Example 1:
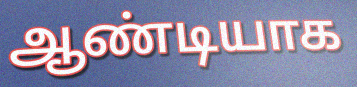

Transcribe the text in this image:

ஆண்டியாக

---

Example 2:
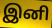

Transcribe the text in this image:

இனி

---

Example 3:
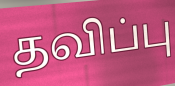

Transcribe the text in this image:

தவிப்பு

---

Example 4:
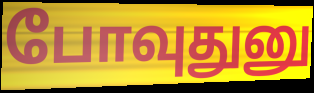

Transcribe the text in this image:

போவுதுனு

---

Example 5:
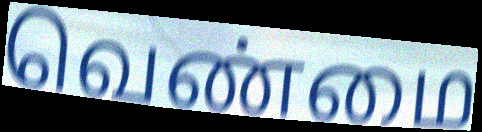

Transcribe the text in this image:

வெண்மை